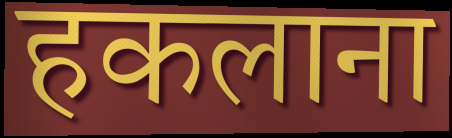
हकलाना